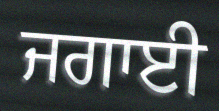
ਜਗਾਈ